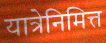
यात्रेनिमित्त